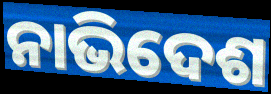
ନାଭିଦେଶ